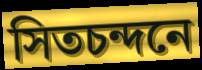
সিতচন্দনে